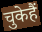
चुकेहैं